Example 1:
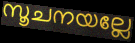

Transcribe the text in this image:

സൂചനയല്ലേ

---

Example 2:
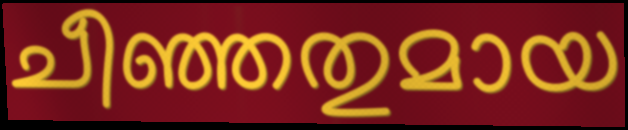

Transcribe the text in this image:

ചീഞ്ഞതുമായ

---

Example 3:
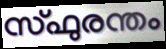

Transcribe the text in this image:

സ്ഫുരന്തം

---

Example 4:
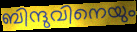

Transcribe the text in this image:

ബിന്ദുവിനെയും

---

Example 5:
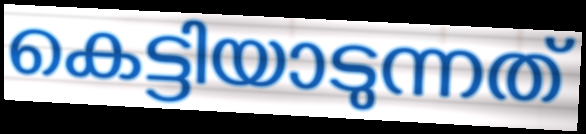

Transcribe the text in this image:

കെട്ടിയാടുന്നത്